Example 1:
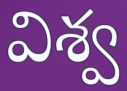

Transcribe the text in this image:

విశ్వ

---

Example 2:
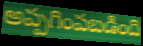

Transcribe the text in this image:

అప్పగింపబడింది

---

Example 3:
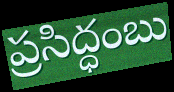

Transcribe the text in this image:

ప్రసిద్ధంబు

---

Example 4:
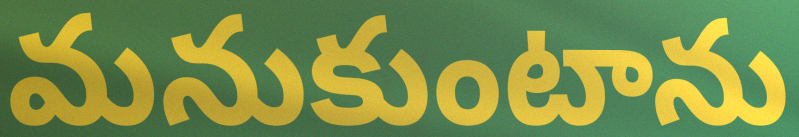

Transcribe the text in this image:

మనుకుంటాను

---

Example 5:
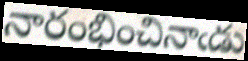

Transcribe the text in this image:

నారంభించినాఁడు